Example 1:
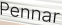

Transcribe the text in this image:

Pennar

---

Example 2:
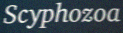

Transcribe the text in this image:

Scyphozoa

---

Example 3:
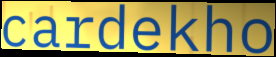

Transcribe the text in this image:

cardekho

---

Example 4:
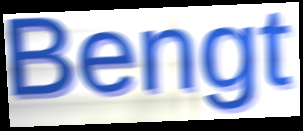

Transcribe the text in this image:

Bengt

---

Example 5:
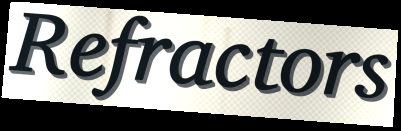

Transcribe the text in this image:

Refractors